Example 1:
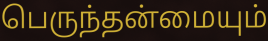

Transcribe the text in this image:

பெருந்தன்மையும்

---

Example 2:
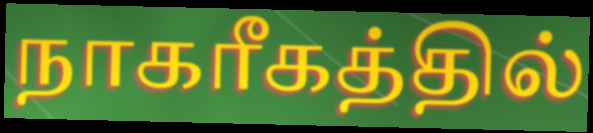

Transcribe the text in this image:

நாகரீகத்தில்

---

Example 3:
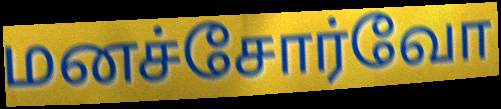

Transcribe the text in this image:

மனச்சோர்வோ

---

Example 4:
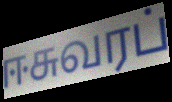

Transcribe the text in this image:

ஈசுவரப்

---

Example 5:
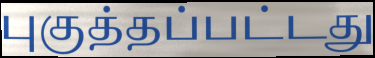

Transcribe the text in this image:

புகுத்தப்பட்டது